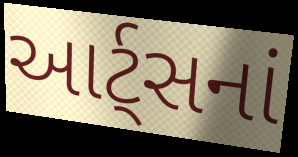
આર્ટ્સનાં